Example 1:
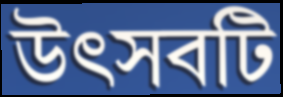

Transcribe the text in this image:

উৎসবটি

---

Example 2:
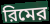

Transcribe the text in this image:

রিমের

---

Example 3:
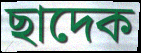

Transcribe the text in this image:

ছাদেক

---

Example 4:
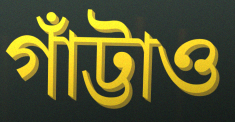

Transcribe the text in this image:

গাঁট্টাও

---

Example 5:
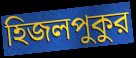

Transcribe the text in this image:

হিজলপুকুর